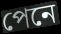
পেনে